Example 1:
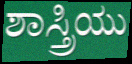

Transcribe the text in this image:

ಶಾಸ್ತ್ರಿಯು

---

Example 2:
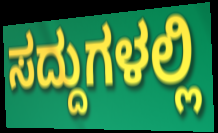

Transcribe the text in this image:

ಸದ್ದುಗಳಲ್ಲಿ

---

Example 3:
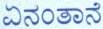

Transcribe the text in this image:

ಏನಂತಾನೆ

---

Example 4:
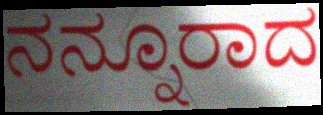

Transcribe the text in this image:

ನನ್ನೂರಾದ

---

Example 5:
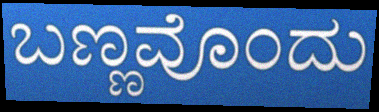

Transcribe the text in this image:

ಬಣ್ಣವೊಂದು